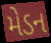
મેડન